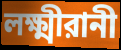
লক্ষ্মীরানী